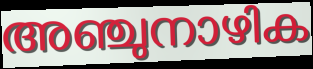
അഞ്ചുനാഴിക